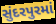
સુંદરપુરમાં